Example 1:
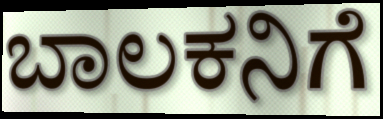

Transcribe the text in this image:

ಬಾಲಕನಿಗೆ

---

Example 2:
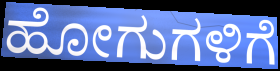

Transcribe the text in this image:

ಹೋಗುಗಳಿಗೆ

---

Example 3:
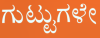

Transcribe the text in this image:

ಗುಟ್ಟುಗಳೇ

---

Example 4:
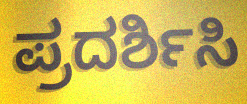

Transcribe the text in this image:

ಪ್ರದರ್ಶಿಸಿ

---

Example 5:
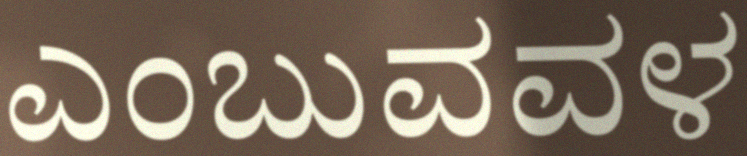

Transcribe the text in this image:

ಎಂಬುವವಳ